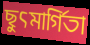
ছুৎমার্গিতা